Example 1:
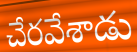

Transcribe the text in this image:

చేరవేశాడు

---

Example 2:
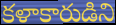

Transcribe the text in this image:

కళాకారుడిని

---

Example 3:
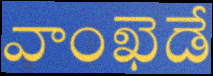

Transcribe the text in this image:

వాంఖెడే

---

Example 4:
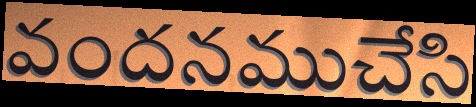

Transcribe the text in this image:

వందనముచేసి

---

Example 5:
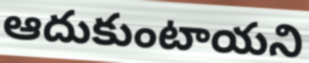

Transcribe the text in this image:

ఆదుకుంటాయని